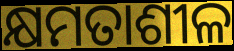
କ୍ଷମତାଶୀଳ